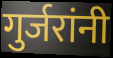
गुर्जरांनी